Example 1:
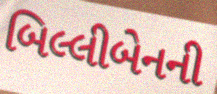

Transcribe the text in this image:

બિલ્લીબેનની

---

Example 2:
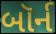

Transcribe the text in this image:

બૉર્ન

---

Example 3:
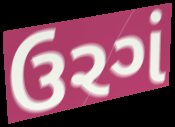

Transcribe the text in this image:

ઉરગં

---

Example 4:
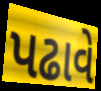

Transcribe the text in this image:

પઢાવે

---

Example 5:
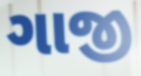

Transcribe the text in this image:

ગાજી